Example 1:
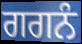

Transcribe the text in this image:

ਗਗਨੰ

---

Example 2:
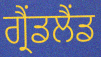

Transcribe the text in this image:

ਗ੍ਰੈਂਡਲੈਂਡ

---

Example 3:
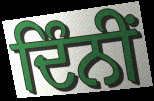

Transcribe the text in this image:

ਦਿੰਨੀਂ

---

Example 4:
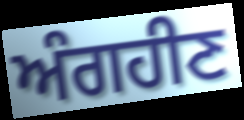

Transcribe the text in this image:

ਅੰਗਹੀਣ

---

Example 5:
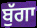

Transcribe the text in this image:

ਬੁੱਗਾ